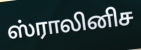
ஸ்ராலினிச